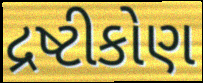
દ્રષ્ટીકોણ